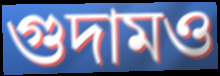
গুদামও